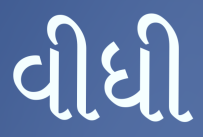
વીધી